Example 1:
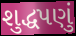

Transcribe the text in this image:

શુદ્ધપણું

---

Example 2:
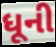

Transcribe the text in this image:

ધૂની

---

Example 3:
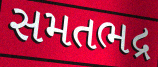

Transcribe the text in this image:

સમતભદ્ર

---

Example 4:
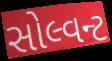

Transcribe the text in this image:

સોલ્વન્ટ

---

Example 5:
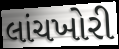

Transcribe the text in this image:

લાંચખોરી